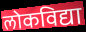
लोकविद्या